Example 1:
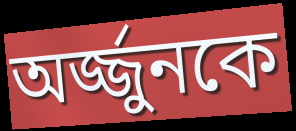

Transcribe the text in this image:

অর্জ্জুনকে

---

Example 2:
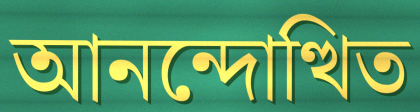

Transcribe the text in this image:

আনন্দোত্থিত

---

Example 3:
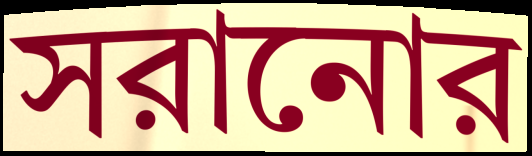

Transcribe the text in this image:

সরানোর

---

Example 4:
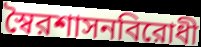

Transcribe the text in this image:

স্বৈরশাসনবিরোধী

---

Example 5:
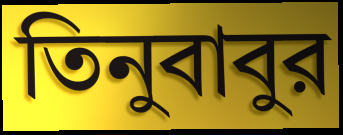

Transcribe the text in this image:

তিনুবাবুর